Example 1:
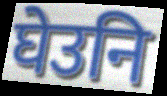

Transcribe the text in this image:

घेउनि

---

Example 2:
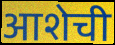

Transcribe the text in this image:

आशेची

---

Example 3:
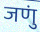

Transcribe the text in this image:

जणुं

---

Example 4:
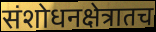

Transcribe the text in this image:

संशोधनक्षेत्रातच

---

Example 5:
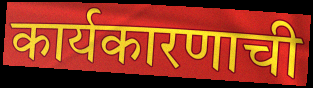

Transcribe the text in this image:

कार्यकारणाची